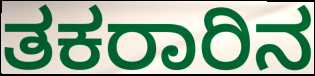
ತಕರಾರಿನ